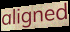
aligned